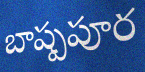
బాష్పపూర